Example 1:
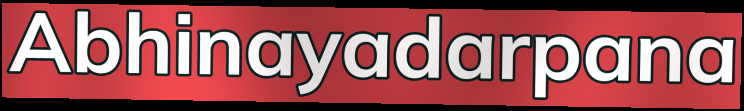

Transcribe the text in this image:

Abhinayadarpana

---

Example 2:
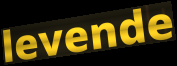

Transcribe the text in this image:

levende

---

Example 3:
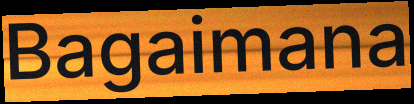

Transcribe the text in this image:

Bagaimana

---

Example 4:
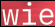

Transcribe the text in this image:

wie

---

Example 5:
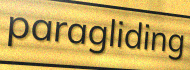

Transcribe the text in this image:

paragliding